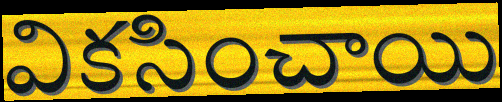
వికసించాయి